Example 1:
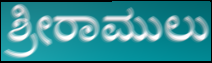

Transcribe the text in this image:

ಶ್ರೀರಾಮುಲು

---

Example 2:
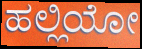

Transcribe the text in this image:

ಹಲ್ಲಿಯೋ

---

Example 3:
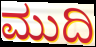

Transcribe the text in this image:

ಮುದಿ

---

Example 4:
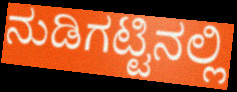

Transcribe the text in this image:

ನುಡಿಗಟ್ಟಿನಲ್ಲಿ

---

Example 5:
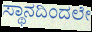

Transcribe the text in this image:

ಸ್ಥಾನದಿಂದಲೇ